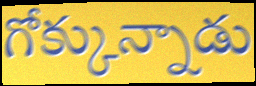
గోక్కున్నాడు